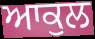
ਆਕੁਲ